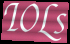
IOLs